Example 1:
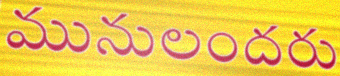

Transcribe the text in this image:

మునులందరు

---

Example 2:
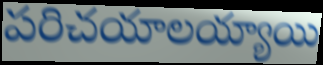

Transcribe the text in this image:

పరిచయాలయ్యాయి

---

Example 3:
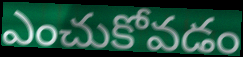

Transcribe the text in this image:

ఎంచుకోవడం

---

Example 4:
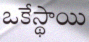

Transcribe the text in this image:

ఒకేస్థాయి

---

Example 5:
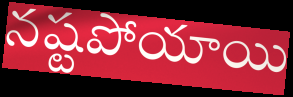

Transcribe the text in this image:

నష్టపోయాయి